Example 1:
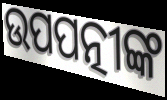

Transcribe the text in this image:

ଉପପତ୍ନୀଙ୍କ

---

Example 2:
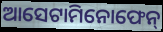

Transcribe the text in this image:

ଆସେଟାମିନୋଫେନ୍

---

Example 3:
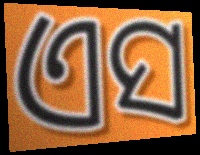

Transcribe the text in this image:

ଏସ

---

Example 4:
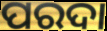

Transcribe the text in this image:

ପରଦା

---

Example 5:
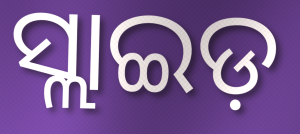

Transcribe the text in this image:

ସ୍ଲାଇଡ଼